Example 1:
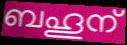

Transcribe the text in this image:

ബഹൂന്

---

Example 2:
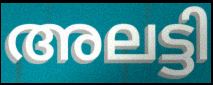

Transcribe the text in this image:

അലട്ടി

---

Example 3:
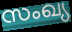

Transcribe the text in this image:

സംഖ്യ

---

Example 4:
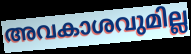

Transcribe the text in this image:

അവകാശവുമില്ല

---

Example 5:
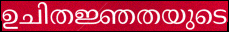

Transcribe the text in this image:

ഉചിതജ്ഞതയുടെ